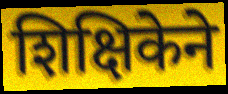
शिक्षिकेने